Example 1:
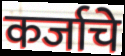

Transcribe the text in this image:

कर्जाचे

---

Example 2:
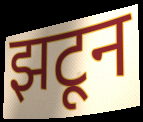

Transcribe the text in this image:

झटून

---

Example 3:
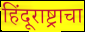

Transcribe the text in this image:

हिंदूराष्ट्राचा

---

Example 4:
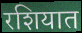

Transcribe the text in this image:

रशियात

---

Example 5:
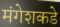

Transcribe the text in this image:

मंगेशकडे